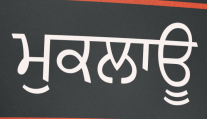
ਮੁਕਲਾਊ